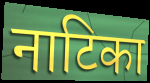
नाटिका